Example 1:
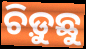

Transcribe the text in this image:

ଚିଡ଼ୁଛୁ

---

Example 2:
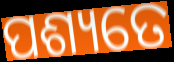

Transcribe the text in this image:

ପଶ୍ୟତେ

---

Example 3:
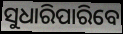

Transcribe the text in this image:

ସୁଧାରିପାରିବେ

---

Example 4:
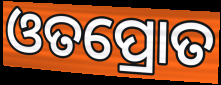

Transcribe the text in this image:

ଓତପ୍ରୋତ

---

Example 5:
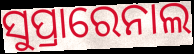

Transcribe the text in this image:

ସୁପ୍ରାରେନାଲ